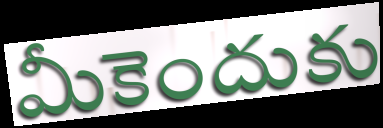
మీకెందుకు